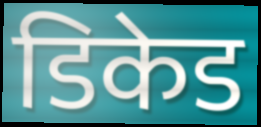
डिकेड